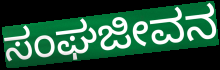
ಸಂಘಜೀವನ